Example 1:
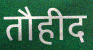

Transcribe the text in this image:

तौहीद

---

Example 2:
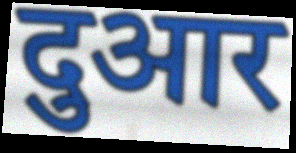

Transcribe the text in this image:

दुआर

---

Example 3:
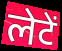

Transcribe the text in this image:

लेटें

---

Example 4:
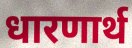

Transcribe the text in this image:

धारणार्थ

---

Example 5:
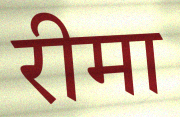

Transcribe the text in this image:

रीमा